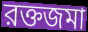
রক্তজমা